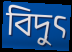
বিদুৎ